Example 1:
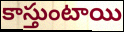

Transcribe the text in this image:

కాస్తుంటాయి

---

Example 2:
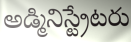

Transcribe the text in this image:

అడ్మినిస్ట్రేటరు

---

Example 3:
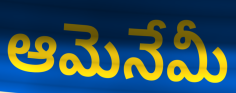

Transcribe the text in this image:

ఆమెనేమీ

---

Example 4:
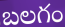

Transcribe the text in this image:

బలగం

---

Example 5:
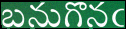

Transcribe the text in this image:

బనుగొనఁ